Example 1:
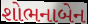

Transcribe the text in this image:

શોભનાબેન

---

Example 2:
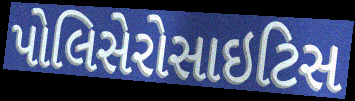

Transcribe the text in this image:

પોલિસેરોસાઇટિસ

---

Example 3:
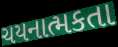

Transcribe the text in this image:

ચયનાત્મકતા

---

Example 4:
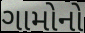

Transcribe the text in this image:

ગામોનો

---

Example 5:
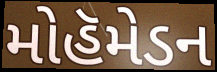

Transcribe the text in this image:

મોહૅમેડન